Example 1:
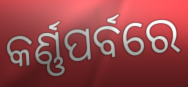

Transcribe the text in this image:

କର୍ଣ୍ଣପର୍ବରେ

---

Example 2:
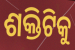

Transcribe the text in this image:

ଶକ୍ତିଟିକୁ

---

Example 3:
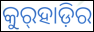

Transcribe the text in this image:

କୁର୍‍ହାଡ଼ିର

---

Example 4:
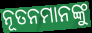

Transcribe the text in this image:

ନୂତନମାନଙ୍କୁ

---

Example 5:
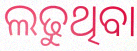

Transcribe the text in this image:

ଲଢୁଥିବା